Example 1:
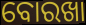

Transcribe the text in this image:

ବୋରଖା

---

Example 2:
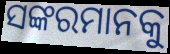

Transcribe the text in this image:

ସଙ୍କରମାନକୁ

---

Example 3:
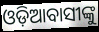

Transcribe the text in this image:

ଓଡ଼ିଆବାସୀଙ୍କୁ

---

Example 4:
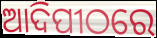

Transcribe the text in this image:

ଆଦିପୀଠରେ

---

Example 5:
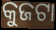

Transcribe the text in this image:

କୁଜଟା